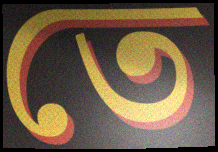
তে